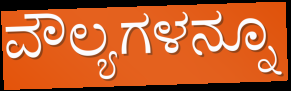
ವೌಲ್ಯಗಳನ್ನೂ